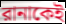
রানাকেই